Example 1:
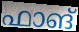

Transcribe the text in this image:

ഫാങ്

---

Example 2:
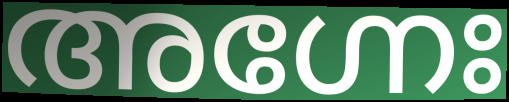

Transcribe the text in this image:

അഗ്നേഃ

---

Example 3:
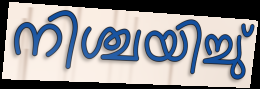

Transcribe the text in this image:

നിശ്ചയിച്ചു്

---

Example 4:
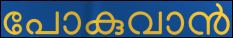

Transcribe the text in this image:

പോകുവാൻ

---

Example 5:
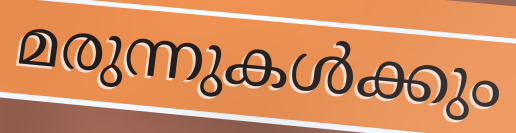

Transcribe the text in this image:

മരുന്നുകൾക്കും